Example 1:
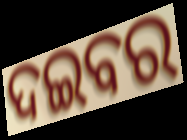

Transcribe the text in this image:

ଦଇବର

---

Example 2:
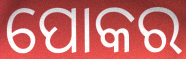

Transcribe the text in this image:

ପୋକର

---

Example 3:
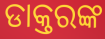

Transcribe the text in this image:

ଡାକ୍ତରଙ୍କ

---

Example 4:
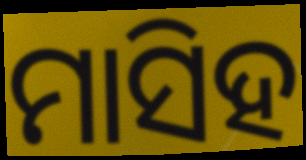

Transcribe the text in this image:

ମାସିହ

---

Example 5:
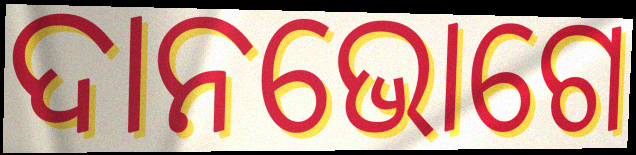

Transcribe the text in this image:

ଦାନଭୋଗେ